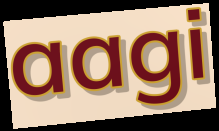
aagi